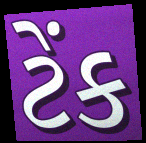
ટેંક